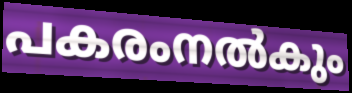
പകരംനൽകും